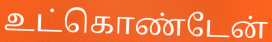
உட்கொண்டேன்